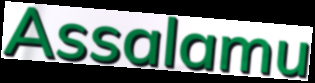
Assalamu